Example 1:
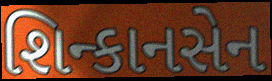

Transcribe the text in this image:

શિન્કાનસેન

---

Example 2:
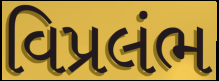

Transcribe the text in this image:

વિપ્રલંભ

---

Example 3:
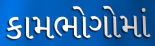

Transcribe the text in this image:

કામભોગોમાં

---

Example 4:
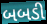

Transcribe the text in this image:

બબડી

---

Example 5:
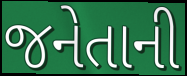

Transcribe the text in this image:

જનેતાની